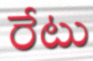
రేటు